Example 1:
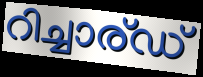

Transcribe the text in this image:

റിച്ചാര്ഡ്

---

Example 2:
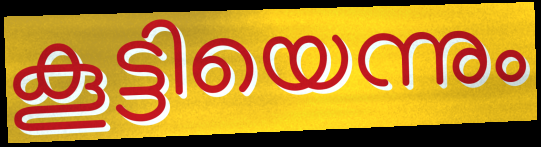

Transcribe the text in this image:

കൂട്ടിയെന്നും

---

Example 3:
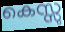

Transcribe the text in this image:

കെസ്സു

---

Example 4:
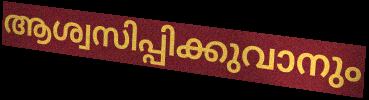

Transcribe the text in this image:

ആശ്വസിപ്പിക്കുവാനും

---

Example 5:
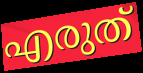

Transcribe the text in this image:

എരുത്